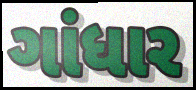
ગાંધાર